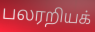
பலரறியக்